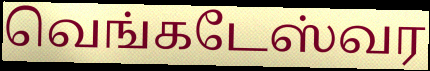
வெங்கடேஸ்வர